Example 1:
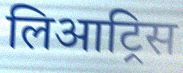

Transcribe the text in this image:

लिआट्रिस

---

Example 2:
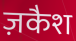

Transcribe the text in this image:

ज़कैश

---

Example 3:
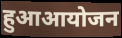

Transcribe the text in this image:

हुआआयोजन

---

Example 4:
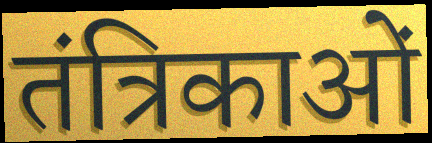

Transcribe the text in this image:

तंत्रिकाओं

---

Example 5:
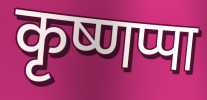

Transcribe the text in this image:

कृष्‍णप्‍पा